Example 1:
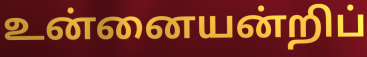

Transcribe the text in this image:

உன்னையன்றிப்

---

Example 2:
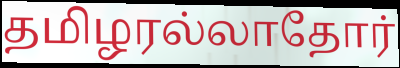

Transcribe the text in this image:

தமிழரல்லாதோர்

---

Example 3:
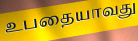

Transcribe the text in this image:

உபதையாவது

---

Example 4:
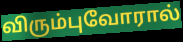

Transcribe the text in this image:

விரும்புவோரால்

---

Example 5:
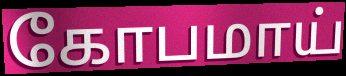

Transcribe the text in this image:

கோபமாய்